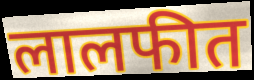
लालफीत